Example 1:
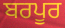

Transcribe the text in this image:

ਬਰਪੂਰ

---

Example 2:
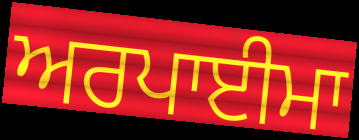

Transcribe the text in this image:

ਅਰਪਾਈਮਾ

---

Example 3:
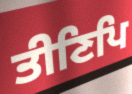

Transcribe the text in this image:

ਤੀਣਿਪਿ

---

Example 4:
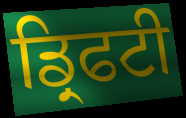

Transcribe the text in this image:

ਡ੍ਰਿਫਟੀ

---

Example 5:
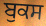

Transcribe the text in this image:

ਬੁਕਸ